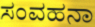
ಸಂವಹನಾ